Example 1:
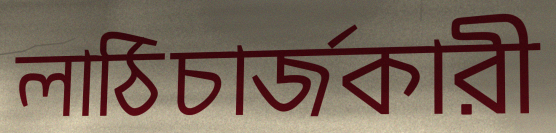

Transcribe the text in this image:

লাঠিচার্জকারী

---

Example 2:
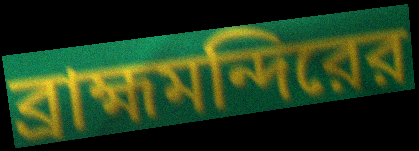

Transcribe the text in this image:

ব্রাহ্মমন্দিরের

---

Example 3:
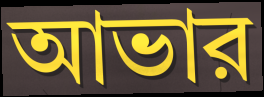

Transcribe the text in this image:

আভার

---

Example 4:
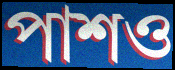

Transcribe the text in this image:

পাশও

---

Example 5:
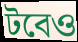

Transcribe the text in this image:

টবেও